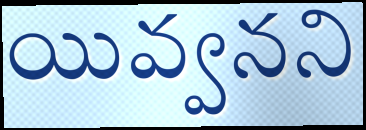
యివ్వనని